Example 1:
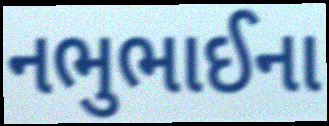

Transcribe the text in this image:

નભુભાઈના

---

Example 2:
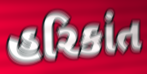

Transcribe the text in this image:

હરિકાંત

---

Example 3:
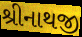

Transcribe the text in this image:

શ્રીનાથજી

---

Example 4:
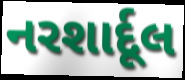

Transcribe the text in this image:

નરશાર્દૂલ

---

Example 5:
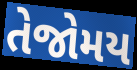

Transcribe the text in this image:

તેજોમય